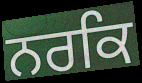
ਨਰਕਿ